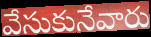
వేసుకునేవారు